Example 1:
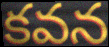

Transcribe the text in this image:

కవన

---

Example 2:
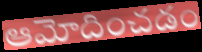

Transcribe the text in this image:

ఆమోదించడం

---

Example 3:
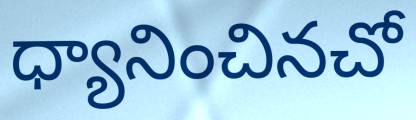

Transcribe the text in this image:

ధ్యానించినచో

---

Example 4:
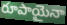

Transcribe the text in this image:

రూపాయైనా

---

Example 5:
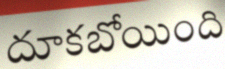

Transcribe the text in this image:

దూకబోయింది